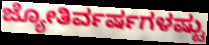
ಜ್ಯೋತಿರ್ವರ್ಷಗಳಷ್ಟು